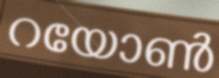
റയോൺ